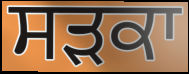
ਸੜਕਾ